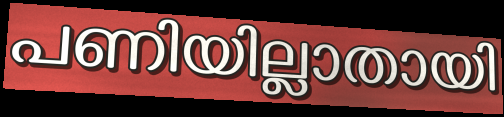
പണിയില്ലാതായി